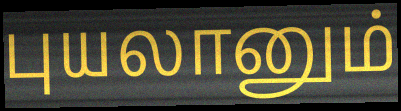
புயலானும்